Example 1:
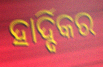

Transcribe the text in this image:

ହାର୍ଦ୍ଦିକର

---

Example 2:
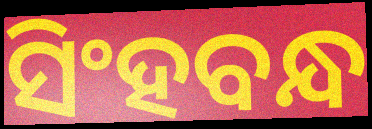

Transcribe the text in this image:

ସିଂହବନ୍ଧ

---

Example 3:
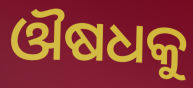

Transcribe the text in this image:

ଔଷଧକୁ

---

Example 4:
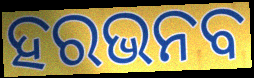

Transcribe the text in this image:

ହରଭନବ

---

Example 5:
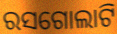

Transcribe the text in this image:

ରସଗୋଲାଟି